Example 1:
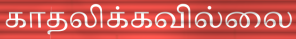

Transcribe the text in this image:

காதலிக்கவில்லை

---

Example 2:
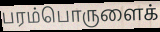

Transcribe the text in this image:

பரம்பொருளைக்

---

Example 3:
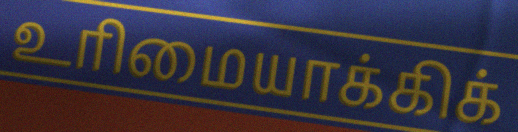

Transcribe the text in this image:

உரிமையாக்கிக்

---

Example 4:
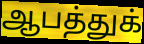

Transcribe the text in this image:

ஆபத்துக்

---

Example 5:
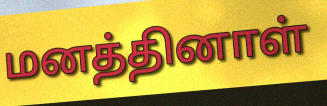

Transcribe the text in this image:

மனத்தினாள்